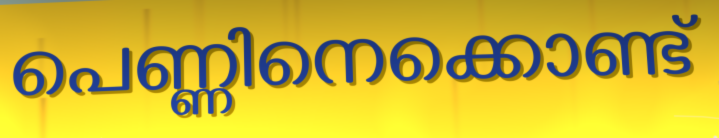
പെണ്ണിനെക്കൊണ്ട്